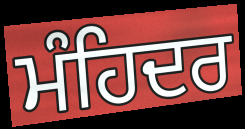
ਮੰਹਿਦਰ